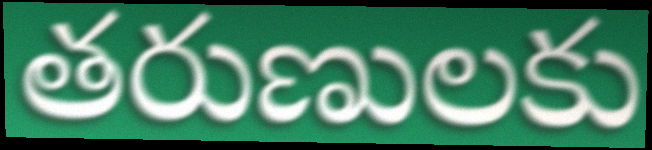
తరుణులకు